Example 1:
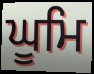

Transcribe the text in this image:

ਘੂਮਿ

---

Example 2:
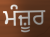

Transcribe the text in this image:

ਮੰਜ਼ੂਰ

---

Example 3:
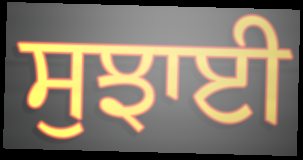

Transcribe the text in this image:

ਸੁਝਾਈ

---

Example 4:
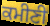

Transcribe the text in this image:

ਕਮੀਣੀ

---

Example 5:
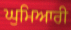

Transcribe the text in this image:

ਘੁਮਿਆਰੀ